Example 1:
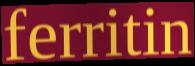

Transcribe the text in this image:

ferritin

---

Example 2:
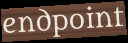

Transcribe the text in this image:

endpoint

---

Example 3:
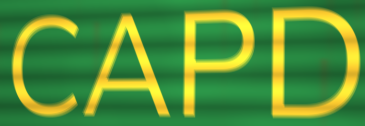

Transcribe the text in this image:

CAPD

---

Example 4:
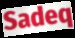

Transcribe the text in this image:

Sadeq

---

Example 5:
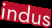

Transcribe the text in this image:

indus